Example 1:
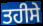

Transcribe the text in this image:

ਤਹੀਸੇ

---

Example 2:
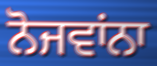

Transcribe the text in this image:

ਨੋਜਵਾਂਨਾ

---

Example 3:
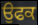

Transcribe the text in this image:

ਉਫਕ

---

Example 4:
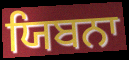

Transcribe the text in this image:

ਯਿਬਨਾ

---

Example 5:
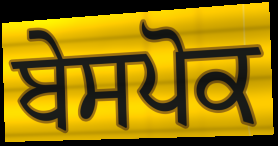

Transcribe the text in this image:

ਬੇਸਪੋਕ